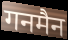
गनमैन